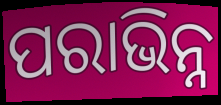
ପରାଭିନ୍ନ